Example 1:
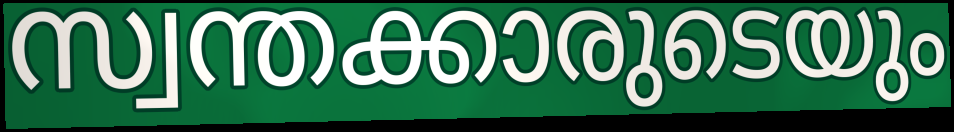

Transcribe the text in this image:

സ്വന്തക്കാരുടെയും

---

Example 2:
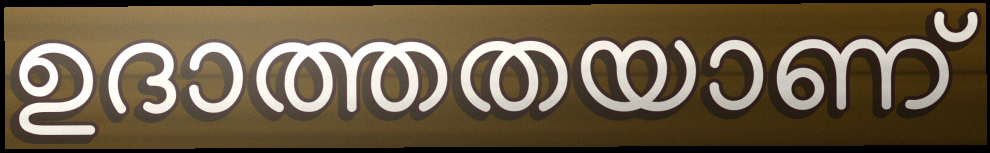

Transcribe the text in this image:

ഉദാത്തതയാണ്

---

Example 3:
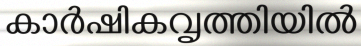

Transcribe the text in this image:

കാർഷികവൃത്തിയിൽ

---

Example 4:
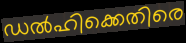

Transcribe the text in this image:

ഡൽഹിക്കെതിരെ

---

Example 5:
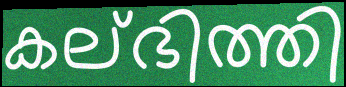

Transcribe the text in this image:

കല്ഭിത്തി